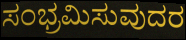
ಸಂಭ್ರಮಿಸುವುದರ